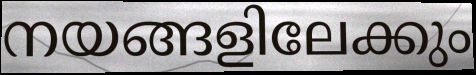
നയങ്ങളിലേക്കും